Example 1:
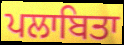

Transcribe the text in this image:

ਪਲਾਬਿਤਾ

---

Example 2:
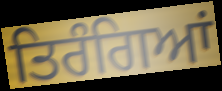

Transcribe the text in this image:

ਤਿਰੰਗਿਆਂ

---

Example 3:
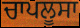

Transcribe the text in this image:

ਚਾਪਲੂਸਾ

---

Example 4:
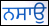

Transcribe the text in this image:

ਨਸਾਉ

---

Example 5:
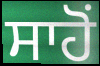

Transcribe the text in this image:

ਸਾਹੋਂ